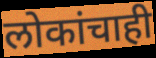
लोकांचाही